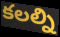
కలల్ని